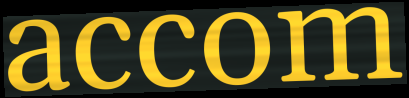
accom